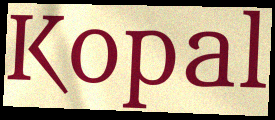
Kopal